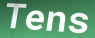
Tens